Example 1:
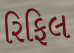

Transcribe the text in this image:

રિફિલ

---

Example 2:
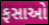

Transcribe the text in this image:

ફસાઓ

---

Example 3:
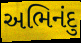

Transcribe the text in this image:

અભિનંદુ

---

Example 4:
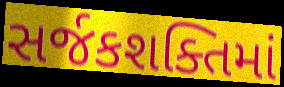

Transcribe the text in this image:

સર્જકશક્તિમાં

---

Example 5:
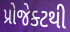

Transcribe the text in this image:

પ્રોજેક્ટથી